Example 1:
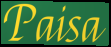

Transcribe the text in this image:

Paisa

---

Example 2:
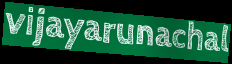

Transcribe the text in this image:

vijayarunachal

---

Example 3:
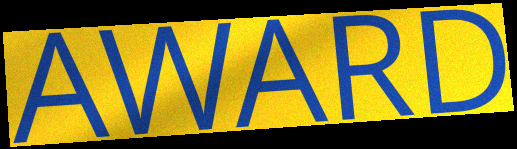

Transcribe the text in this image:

AWARD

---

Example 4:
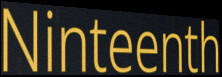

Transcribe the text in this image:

Ninteenth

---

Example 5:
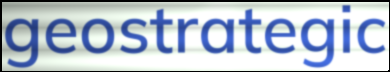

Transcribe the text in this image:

geostrategic